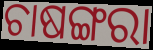
ଚାଷଙ୍ଗରା